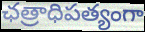
ఛత్రాధిపత్యంగా